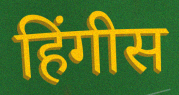
हिंगीस